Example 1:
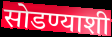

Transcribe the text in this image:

सोडण्याशी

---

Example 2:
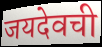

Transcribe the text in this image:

जयदेवची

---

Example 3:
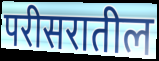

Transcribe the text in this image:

परीसरातील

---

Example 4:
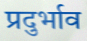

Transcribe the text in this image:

प्रदुर्भाव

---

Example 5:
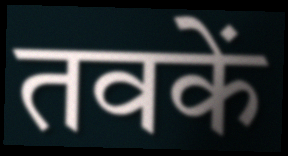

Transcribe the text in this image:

तवकें